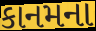
કાનમના